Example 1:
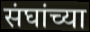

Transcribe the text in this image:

संघांच्या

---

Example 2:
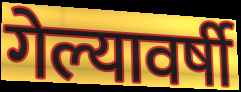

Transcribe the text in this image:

गेल्यावर्षी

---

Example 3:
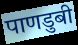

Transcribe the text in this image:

पाणडुबी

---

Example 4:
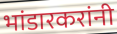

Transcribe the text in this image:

भांडारकरांनी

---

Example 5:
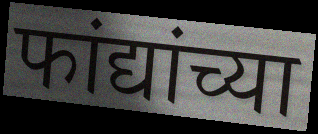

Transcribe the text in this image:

फांद्यांच्या